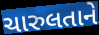
ચારુલતાને